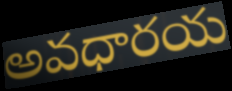
అవధారయ